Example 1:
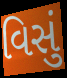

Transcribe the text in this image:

વિસું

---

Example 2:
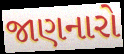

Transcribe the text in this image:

જાણનારો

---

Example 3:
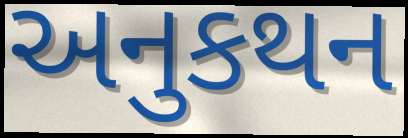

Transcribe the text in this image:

અનુકથન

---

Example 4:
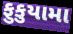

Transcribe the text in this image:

ફુકુયામા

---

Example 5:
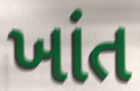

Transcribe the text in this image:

ખાંત